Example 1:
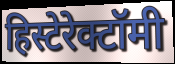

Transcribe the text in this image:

हिस्टेरेक्टॉमी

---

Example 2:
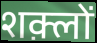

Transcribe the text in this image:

शक़्लों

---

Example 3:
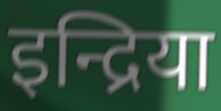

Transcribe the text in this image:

इन्द्रिया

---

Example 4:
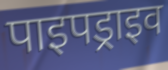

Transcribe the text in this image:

पाइपड्राइव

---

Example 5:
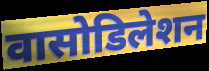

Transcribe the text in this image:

वासोडिलेशन